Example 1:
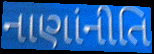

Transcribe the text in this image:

નાણાંનીતિ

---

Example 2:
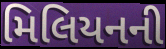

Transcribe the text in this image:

મિલિયનની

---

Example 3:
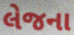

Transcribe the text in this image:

લેજના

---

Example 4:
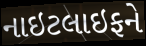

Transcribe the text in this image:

નાઇટલાઇફને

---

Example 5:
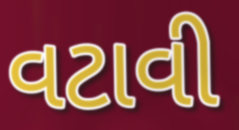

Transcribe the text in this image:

વટાવી